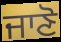
ਜਾਣੋ